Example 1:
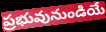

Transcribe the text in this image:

ప్రభువునుండియే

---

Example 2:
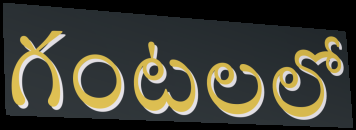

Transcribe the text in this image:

గంటలలో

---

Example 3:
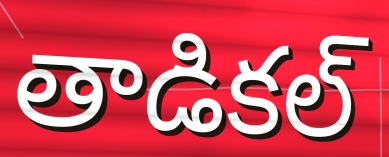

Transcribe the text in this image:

తాడికల్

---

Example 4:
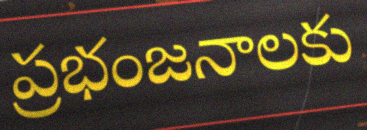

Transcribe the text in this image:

ప్రభంజనాలకు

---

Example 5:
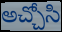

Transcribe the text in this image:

అచ్చోసి